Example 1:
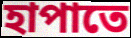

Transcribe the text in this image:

হাপাতে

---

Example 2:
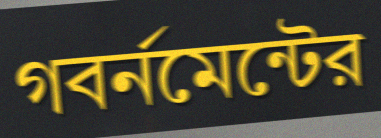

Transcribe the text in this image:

গবর্নমেন্টের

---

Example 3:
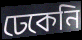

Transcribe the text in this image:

ঢেকেনি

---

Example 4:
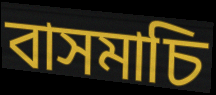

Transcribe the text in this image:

বাসমাচি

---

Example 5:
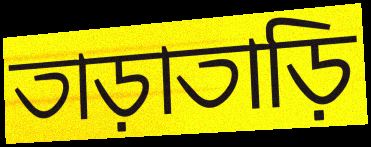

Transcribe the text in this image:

তাড়াতাড়ি